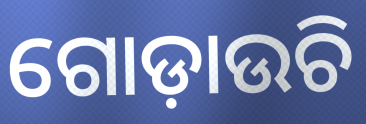
ଗୋଡ଼ାଉଚି